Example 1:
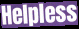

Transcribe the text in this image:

Helpless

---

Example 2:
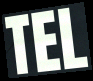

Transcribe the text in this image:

TEL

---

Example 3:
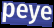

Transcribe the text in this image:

peye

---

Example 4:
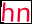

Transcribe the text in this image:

hn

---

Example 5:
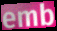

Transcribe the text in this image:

emb